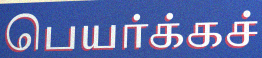
பெயர்க்கச்